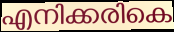
എനിക്കരികെ